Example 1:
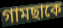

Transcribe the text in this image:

গামছাকে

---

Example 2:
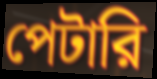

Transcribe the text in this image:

পেটারি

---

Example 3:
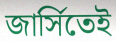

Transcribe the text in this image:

জার্সিতেই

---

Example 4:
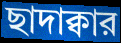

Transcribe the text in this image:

ছাদাক্বার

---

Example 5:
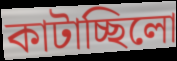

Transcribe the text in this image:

কাটাচ্ছিলো